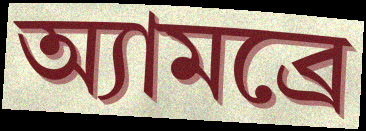
অ্যামব্রে